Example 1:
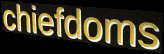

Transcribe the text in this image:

chiefdoms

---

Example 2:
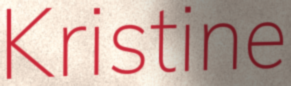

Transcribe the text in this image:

Kristine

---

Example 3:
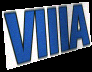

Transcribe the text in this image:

VIIIA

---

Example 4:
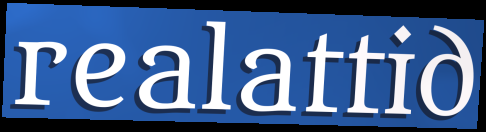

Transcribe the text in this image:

realattid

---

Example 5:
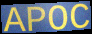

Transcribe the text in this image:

APOC